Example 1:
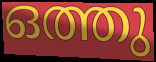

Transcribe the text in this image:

ഒത്തു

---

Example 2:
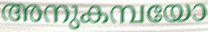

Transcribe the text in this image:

അനുകമ്പയോ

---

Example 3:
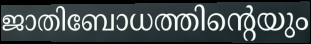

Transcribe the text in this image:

ജാതിബോധത്തിന്റെയും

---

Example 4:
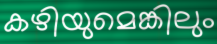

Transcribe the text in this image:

കഴിയുമെങ്കിലും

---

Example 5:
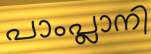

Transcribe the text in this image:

പാംപ്ലാനി